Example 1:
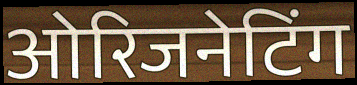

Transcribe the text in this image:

ओरिजनेटिंग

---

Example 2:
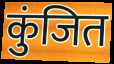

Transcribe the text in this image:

कुंजित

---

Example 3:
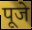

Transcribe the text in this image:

पूजे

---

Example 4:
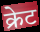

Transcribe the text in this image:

क्रेट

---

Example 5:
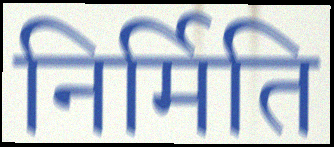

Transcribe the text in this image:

निर्मिति